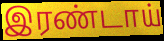
இரண்டாய்